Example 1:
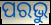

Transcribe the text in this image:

ପରଭୁ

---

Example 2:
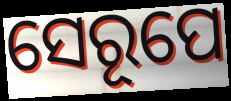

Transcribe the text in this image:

ସେରୂପେ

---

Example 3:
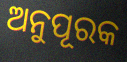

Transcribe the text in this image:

ଅନୁପୂରକ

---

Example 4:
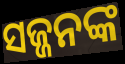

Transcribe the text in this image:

ସଜ୍ଜନଙ୍କ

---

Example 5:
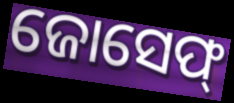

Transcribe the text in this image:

ଜୋସେଫ୍